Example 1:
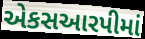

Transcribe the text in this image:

એકસઆરપીમાં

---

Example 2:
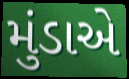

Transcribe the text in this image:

મુંડાએ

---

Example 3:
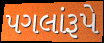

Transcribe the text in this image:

પગલાંરૂપે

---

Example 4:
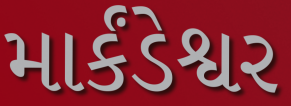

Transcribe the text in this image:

માર્કંડેશ્વર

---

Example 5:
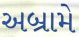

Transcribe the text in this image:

અબ્રામે